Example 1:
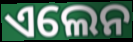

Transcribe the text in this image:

ଏଲେନ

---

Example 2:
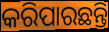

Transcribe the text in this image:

କରିପାରଛନ୍ତି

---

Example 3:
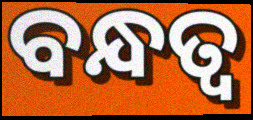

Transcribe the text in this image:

ବନ୍ଧତ୍ୱ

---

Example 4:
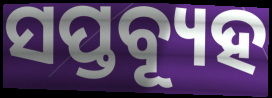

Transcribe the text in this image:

ସପ୍ତବ୍ୟୂହ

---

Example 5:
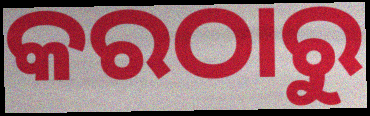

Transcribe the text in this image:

କରଠାରୁ